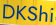
DKShi